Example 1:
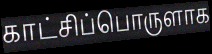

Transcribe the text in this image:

காட்சிப்பொருளாக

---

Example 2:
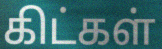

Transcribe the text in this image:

கிட்கள்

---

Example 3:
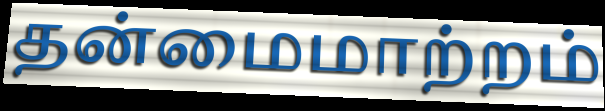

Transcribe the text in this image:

தன்மைமாற்றம்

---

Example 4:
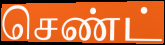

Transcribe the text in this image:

செண்ட்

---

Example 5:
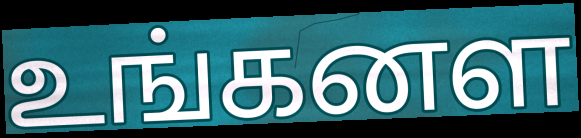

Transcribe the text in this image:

உங்கனள